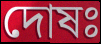
দোষঃ